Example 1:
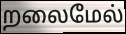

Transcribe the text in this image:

றலைமேல்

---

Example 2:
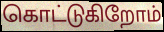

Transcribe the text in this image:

கொட்டுகிறோம்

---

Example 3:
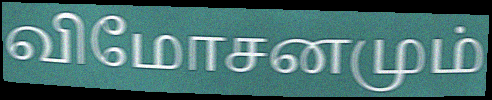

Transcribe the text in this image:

விமோசனமும்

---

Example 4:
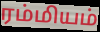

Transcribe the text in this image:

ரம்மியம்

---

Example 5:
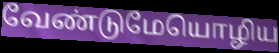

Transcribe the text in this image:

வேண்டுமேயொழிய